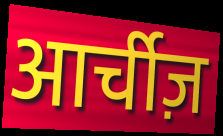
आर्चीज़